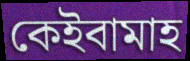
কেইবামাহ